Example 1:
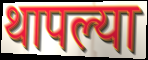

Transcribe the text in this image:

थापल्या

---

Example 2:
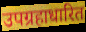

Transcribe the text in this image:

उपग्रहाधारित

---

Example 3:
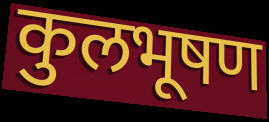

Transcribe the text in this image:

कुलभूषण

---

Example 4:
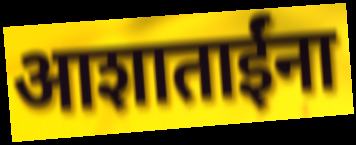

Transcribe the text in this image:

आशाताईंना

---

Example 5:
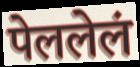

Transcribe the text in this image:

पेललेलं